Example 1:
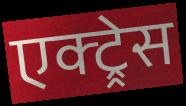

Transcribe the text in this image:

एक्ट्र्रेस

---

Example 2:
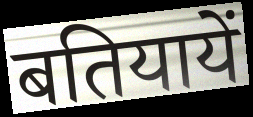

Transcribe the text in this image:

बतियायें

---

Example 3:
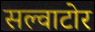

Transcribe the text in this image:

सल्वाटोर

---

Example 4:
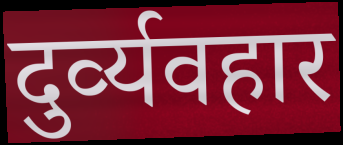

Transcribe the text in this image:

दुर्व्‍यवहार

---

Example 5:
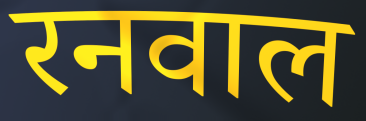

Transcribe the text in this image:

रनवाल